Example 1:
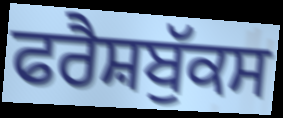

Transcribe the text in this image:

ਫਰੈਸ਼ਬੁੱਕਸ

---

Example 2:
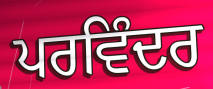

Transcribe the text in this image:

ਪਰਵਿੰਦਰ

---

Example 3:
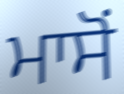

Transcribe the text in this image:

ਮਾਸੋਂ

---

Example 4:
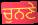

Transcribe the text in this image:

ਚੁਨਣੇ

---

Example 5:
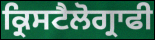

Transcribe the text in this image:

ਕ੍ਰਿਸਟੈਲੋਗ੍ਰਾਫੀ